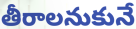
తీరాలనుకునే